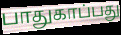
பாதுகாப்பது